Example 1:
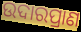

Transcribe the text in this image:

ଉଦାରପ୍ରାଣ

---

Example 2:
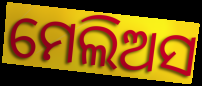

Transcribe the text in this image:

ମେଲିଅସ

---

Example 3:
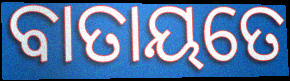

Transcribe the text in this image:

ବାତାୟତେ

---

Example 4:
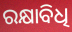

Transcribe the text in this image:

ରକ୍ଷାବିଧି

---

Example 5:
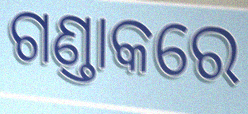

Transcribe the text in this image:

ଗଣ୍ଡାକରେ